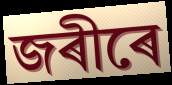
জৰীৰে